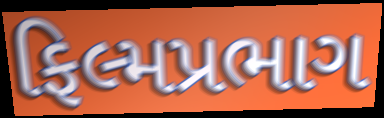
ફિલ્મપ્રભાગ